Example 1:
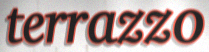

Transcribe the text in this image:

terrazzo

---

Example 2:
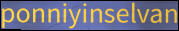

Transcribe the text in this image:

ponniyinselvan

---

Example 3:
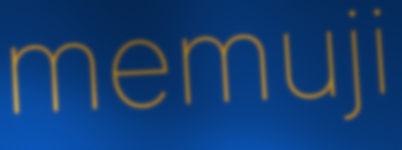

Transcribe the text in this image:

memuji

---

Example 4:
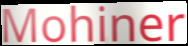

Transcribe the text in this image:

Mohiner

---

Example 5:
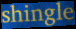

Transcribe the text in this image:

shingle